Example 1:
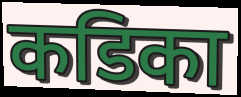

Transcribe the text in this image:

कडिका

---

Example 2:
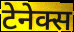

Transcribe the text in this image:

टेनेक्स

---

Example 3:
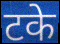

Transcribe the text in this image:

टके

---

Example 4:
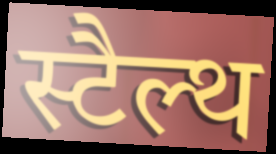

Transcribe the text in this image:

स्टैल्थ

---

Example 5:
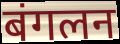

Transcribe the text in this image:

बंगलन